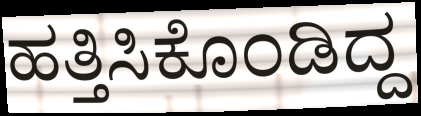
ಹತ್ತಿಸಿಕೊಂಡಿದ್ದ